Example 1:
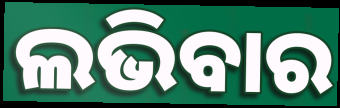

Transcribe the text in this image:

ଲଭିବାର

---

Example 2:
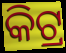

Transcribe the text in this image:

କିଟ୍ର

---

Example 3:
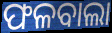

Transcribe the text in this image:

ଫଳବାଲା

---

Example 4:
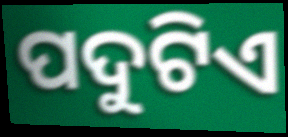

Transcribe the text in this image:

ପଦୁଟିଏ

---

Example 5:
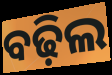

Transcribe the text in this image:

ବଢ଼ିଲ